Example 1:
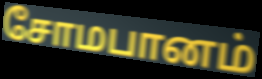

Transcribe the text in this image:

சோமபானம்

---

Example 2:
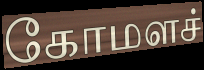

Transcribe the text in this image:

கோமளச்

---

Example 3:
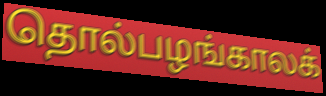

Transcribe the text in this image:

தொல்பழங்காலக்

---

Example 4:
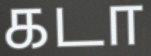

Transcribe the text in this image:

கடா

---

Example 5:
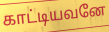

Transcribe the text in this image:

காட்டியவனே